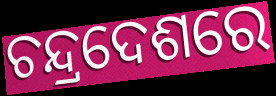
ଚନ୍ଦ୍ରଦେଶରେ